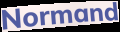
Normand